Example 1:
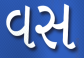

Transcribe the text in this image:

વસ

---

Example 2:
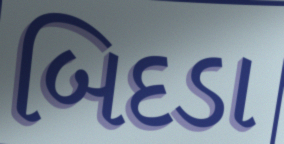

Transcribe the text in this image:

બિદડા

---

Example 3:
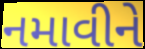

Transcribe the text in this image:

નમાવીને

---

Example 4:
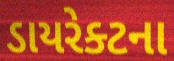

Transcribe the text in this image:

ડાયરેક્ટના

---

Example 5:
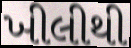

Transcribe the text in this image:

ખીલીથી